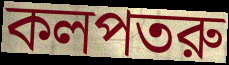
কলপতরু